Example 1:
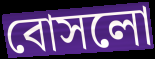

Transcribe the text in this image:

বোসলো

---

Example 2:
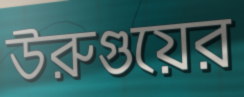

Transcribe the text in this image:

উরুগুয়ের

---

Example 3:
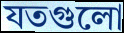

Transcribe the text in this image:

যতগুলো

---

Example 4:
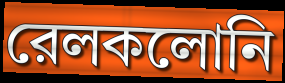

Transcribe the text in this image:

রেলকলোনি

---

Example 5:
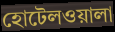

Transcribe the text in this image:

হোটেলওয়ালা